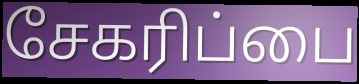
சேகரிப்பை